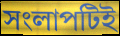
সংলাপটিই